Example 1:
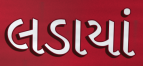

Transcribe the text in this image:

લડાયાં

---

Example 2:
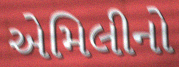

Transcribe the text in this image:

એમિલીનો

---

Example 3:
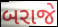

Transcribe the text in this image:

બરાજે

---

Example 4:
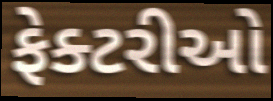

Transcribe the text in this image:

ફેક્ટરીઓ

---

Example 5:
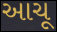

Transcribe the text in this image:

આચૂ